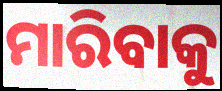
ମାରିବାକୁ